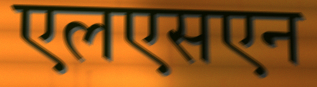
एलएसएन